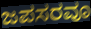
ಜಪಸರವೂ